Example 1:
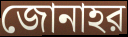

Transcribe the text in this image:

জোনাহর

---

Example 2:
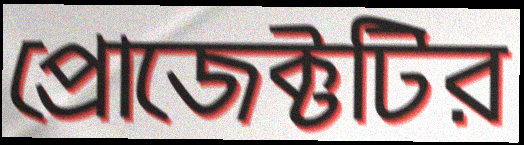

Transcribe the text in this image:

প্রোজেক্টটির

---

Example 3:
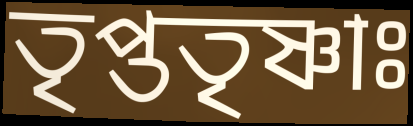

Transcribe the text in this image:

তৃপ্ততৃষ্ণাঃ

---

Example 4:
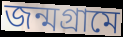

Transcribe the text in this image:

জন্মগ্রামে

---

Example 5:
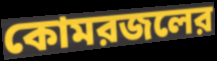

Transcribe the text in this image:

কোমরজলের